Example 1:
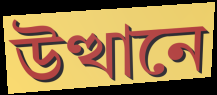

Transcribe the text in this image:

উত্থানে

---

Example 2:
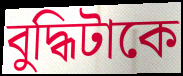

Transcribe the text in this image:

বুদ্ধিটাকে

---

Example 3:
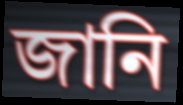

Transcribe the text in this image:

জানি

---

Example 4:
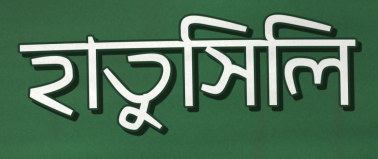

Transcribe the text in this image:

হাতুসিলি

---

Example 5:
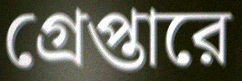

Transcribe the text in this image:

গ্রেপ্তারে